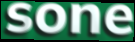
sone